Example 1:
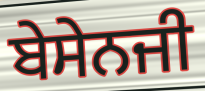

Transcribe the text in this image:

ਬੇਸੇਨਜੀ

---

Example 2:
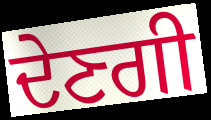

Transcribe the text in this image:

ਦੇਣਗੀ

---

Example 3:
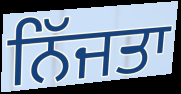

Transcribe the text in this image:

ਨਿੱਜਤਾ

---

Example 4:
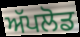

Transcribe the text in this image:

ਅੱਪਲੋਡ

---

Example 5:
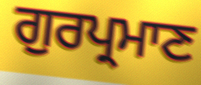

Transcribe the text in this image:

ਗੁਰਪ੍ਰਮਾਣ